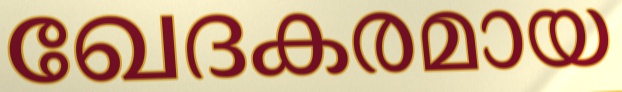
ഖേദകരമായ